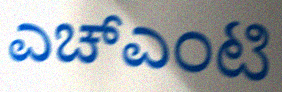
ಎಚ್ಎಂಟಿ